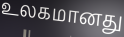
உலகமானது